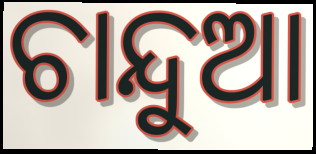
ଚାନ୍ଦୁଆ